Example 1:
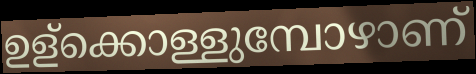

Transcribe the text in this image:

ഉള്ക്കൊള്ളുമ്പോഴാണ്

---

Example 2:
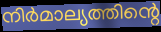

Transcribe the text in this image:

നിർമാല്യത്തിന്റെ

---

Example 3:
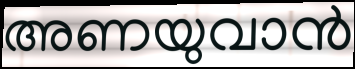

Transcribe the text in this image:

അണയുവാൻ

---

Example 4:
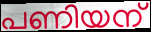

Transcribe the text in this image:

പണിയന്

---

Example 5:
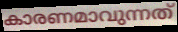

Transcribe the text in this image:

കാരണമാവുന്നത്